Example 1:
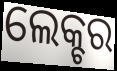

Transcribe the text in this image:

ଲେକ୍ଚର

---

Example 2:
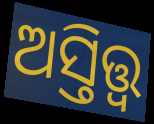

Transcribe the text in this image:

ଅସ୍ତିତ୍ତ୍ବ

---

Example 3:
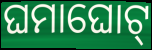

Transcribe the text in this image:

ଘମାଘୋଟ୍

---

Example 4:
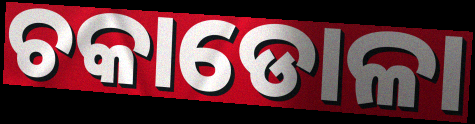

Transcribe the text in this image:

ଚକାଡୋଳା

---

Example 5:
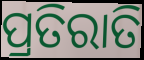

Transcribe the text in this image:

ପ୍ରତିରାତି